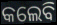
କଲେବି